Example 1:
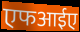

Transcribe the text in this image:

एफआईए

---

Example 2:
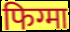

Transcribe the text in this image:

फिग्मा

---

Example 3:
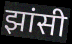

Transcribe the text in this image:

झांसी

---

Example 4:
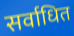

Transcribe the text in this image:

सर्वाधित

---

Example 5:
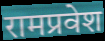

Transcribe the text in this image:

रामप्रवेश